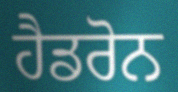
ਹੈਡਰੋਨ